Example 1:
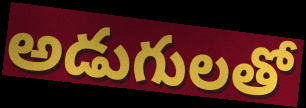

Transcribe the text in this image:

అడుగులతో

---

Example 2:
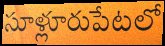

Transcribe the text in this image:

సూళ్లూరుపేటలో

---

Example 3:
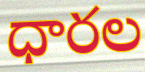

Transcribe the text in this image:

ధారల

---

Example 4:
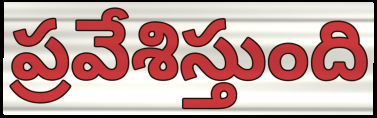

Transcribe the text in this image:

ప్రవేశిస్తుంది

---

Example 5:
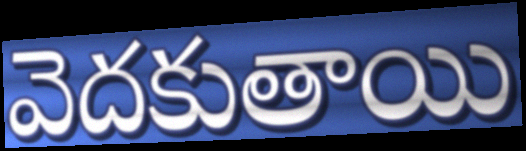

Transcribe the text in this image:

వెదకుతాయి